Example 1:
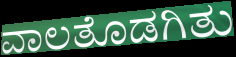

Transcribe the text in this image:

ವಾಲತೊಡಗಿತು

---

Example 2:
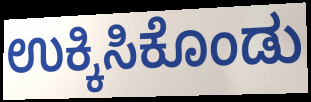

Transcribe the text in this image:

ಉಕ್ಕಿಸಿಕೊಂಡು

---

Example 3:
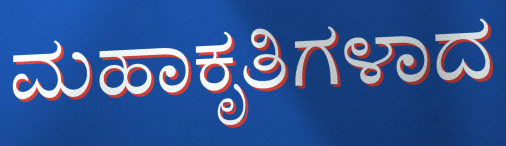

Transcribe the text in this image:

ಮಹಾಕೃತಿಗಳಾದ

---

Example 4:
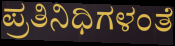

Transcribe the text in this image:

ಪ್ರತಿನಿಧಿಗಳಂತೆ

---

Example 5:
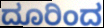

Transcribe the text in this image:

ದೂರಿಂದ